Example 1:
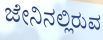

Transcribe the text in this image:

ಜೇನಿನಲ್ಲಿರುವ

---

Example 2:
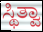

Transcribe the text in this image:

ಸ್ಥಿತ್ವಾ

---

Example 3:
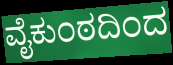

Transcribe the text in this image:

ವೈಕುಂಠದಿಂದ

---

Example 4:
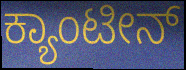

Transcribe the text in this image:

ಕ್ಯಾಂಟೀನ್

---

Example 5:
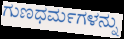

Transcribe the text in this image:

ಗುಣಧರ್ಮಗಳನ್ನು